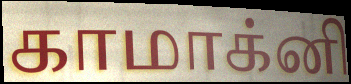
காமாக்னி